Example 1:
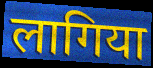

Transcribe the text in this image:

लागिया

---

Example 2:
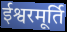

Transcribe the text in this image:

ईश्वरमूर्ति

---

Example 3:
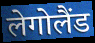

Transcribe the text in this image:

लेगोलैंड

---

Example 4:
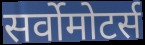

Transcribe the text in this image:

सर्वोमोटर्स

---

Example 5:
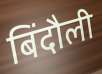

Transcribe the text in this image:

बिंदौली